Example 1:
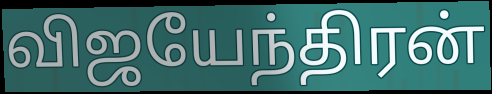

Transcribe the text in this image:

விஜயேந்திரன்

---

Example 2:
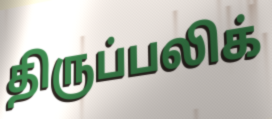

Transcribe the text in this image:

திருப்பலிக்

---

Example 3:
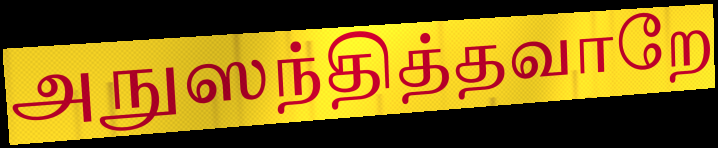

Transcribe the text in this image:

அநுஸந்தித்தவாறே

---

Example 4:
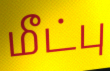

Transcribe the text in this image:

மீட்பு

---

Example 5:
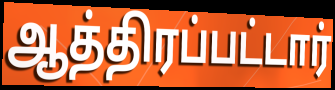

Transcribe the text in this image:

ஆத்திரப்பட்டார்